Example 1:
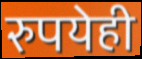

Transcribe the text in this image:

रुपयेही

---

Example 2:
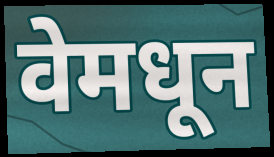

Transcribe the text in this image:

वेमधून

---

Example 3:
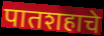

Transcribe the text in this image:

पातशहाचे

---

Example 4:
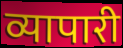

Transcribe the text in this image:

व्यापारी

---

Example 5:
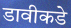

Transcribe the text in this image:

डावीकडे